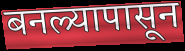
बनल्यापासून